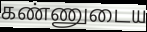
கண்ணுடைய